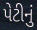
પેટીનું